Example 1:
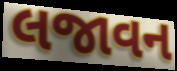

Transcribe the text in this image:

લજાવન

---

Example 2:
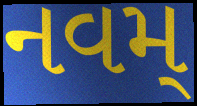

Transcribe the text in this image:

નવમ્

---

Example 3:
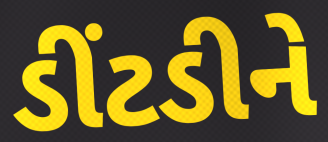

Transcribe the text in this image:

ડીંટડીને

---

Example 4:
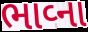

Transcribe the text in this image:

ભાવ્ના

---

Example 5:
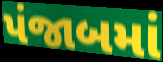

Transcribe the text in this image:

પંજાબમાં